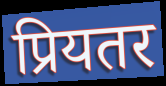
प्रियतर